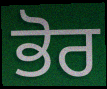
ਭੋਰ